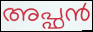
അപ്ഫൻ